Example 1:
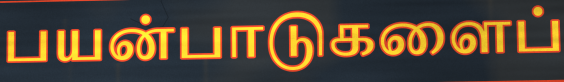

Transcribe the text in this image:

பயன்பாடுகளைப்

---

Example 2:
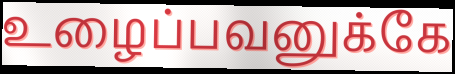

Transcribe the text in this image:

உழைப்பவனுக்கே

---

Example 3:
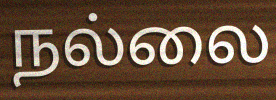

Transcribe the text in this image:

நல்லை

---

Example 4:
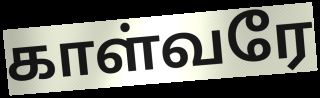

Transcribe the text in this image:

காள்வரே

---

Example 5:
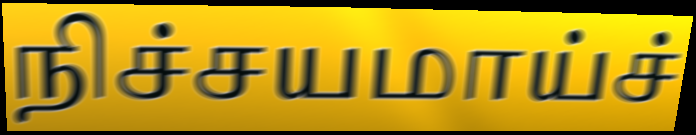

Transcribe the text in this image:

நிச்சயமாய்ச்